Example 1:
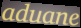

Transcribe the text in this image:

aduane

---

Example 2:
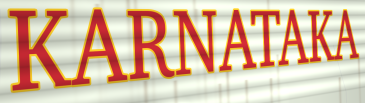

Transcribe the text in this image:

KARNATAKA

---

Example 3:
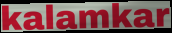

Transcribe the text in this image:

kalamkar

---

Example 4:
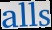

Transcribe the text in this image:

alls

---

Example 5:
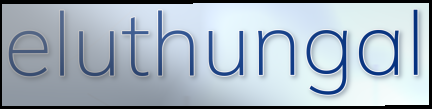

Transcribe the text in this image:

eluthungal